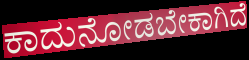
ಕಾದುನೋಡಬೇಕಾಗಿದೆ